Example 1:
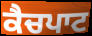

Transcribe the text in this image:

ਕੈਚਪਾਟ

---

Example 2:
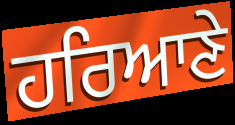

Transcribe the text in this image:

ਹਰਿਆਣੇ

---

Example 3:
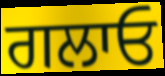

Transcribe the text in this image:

ਗਲਾਓ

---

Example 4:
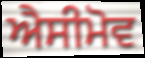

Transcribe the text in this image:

ਐਸੀਮੋਵ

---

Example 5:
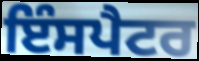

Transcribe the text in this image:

ਇੰਸਪੈਟਰ